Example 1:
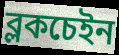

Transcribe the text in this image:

ব্লকচেইন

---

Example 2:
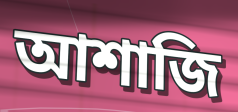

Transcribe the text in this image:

আশাজি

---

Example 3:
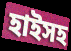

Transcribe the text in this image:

হাইসহ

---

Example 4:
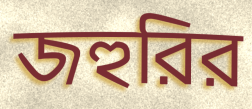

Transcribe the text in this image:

জহুরির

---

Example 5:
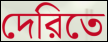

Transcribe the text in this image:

দেরিতে